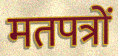
मतपत्रों